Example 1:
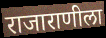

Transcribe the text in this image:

राजाराणीला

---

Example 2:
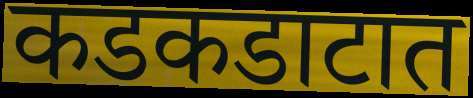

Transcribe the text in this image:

कडकडाटात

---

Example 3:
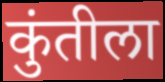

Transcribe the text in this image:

कुंतीला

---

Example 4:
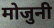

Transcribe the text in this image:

मोजुनी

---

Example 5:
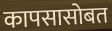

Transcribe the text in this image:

कापसासोबत